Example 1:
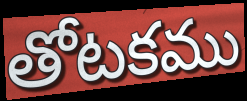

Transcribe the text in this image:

తోటకము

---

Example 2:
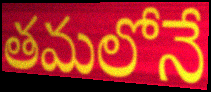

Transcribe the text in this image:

తమలోనే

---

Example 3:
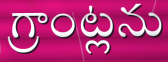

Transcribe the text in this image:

గ్రాంట్లను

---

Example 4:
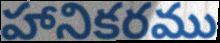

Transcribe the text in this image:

హానికరము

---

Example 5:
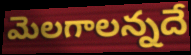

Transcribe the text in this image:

మెలగాలన్నదే